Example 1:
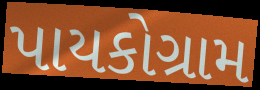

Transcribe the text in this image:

પાયકોગ્રામ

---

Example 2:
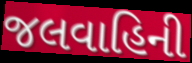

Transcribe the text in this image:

જલવાહિની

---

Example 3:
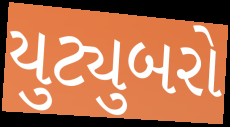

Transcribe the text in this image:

યુટ્યુબરો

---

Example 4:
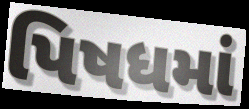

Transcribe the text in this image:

પિષધમાં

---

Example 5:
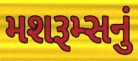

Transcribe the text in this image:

મશરૂમ્સનું